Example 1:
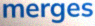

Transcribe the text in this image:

merges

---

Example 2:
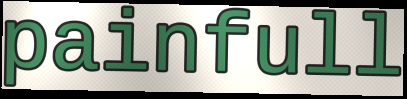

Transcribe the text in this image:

painfull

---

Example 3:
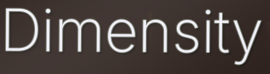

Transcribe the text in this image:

Dimensity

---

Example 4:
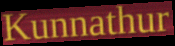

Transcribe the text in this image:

Kunnathur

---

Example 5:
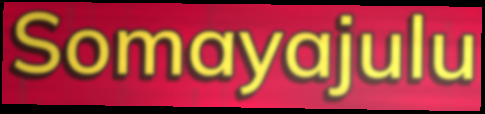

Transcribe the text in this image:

Somayajulu